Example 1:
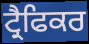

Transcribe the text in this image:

ਟ੍ਰੈਫਿਕਰ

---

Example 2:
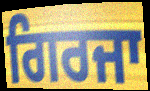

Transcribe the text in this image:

ਗਿਰਜਾ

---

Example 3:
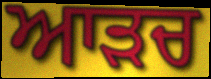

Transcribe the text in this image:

ਆੜਚ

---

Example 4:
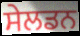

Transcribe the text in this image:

ਸੇਲਡਨ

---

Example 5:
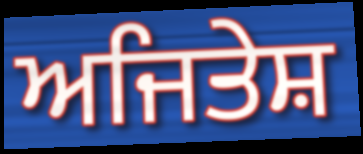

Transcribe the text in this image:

ਅਜਿਤੇਸ਼